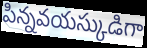
పిన్నవయస్కుడిగా